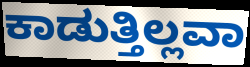
ಕಾಡುತ್ತಿಲ್ಲವಾ